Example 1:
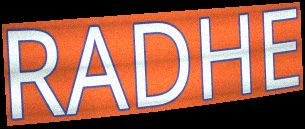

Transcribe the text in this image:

RADHE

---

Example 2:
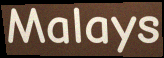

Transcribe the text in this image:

Malays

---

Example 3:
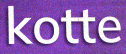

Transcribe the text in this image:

kotte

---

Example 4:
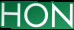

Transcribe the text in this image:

HON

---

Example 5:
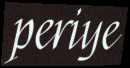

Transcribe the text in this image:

periye